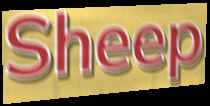
Sheep